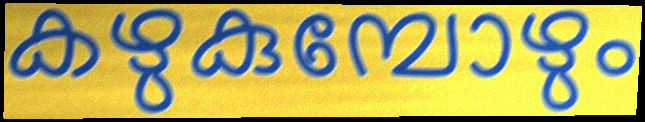
കഴുകുമ്പോഴും